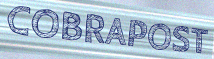
COBRAPOST